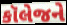
કૉલેજને